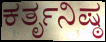
ಕರ್ತೃನಿಷ್ಠ